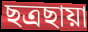
ছত্রছায়া